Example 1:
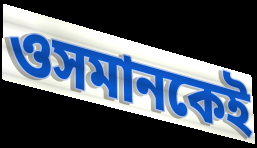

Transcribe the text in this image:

ওসমানকেই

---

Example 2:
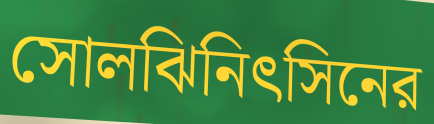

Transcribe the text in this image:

সোলঝিনিৎসিনের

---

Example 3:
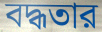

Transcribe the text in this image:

বদ্ধতার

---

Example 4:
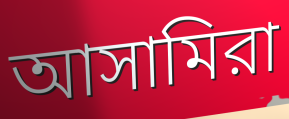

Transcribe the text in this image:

আসামিরা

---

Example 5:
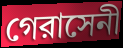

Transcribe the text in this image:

গেরাসেনী